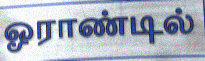
ஓராண்டில்